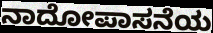
ನಾದೋಪಾಸನೆಯ